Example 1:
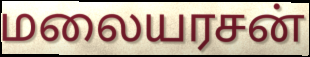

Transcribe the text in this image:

மலையரசன்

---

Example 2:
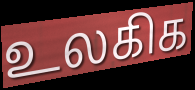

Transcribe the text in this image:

உலகிக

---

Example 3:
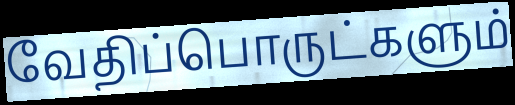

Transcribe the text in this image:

வேதிப்பொருட்களும்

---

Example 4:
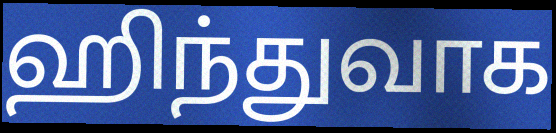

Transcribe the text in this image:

ஹிந்துவாக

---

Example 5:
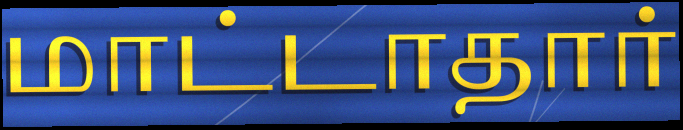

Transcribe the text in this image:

மாட்டாதார்